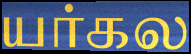
யர்கல